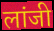
लांजी